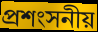
প্ৰশংসনীয়